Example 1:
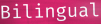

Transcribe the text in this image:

Bilingual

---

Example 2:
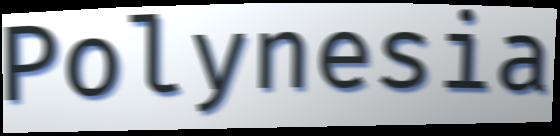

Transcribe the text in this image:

Polynesia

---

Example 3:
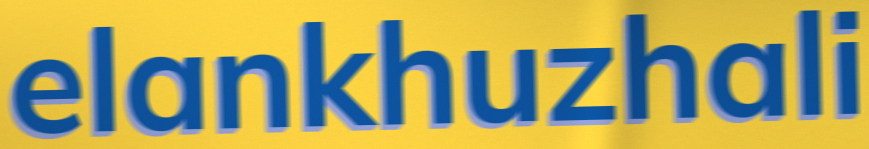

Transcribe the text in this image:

elankhuzhali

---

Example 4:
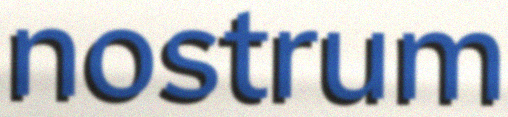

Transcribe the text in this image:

nostrum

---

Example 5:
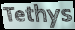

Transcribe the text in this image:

Tethys